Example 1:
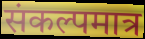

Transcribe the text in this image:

संकल्पमात्र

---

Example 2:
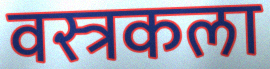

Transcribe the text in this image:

वस्त्रकला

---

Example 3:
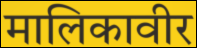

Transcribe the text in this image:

मालिकावीर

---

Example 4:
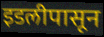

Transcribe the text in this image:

इडलीपासून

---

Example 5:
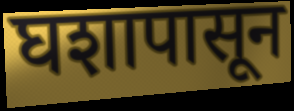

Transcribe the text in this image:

घशापासून